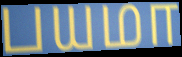
பயமா